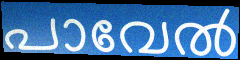
പാവേൽ